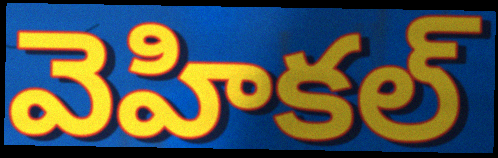
వెహికల్